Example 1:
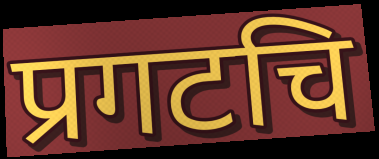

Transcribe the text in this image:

प्रगटचि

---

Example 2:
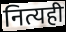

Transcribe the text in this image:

नित्यही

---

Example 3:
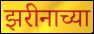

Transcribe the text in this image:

झरीनाच्या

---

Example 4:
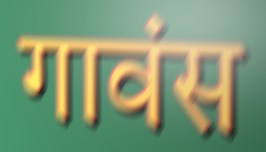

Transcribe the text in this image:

गावंस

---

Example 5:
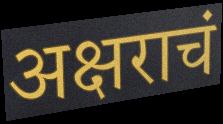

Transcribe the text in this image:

अक्षराचं